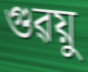
গুৱয়ু